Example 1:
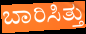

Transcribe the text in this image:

ಬಾರಿಸಿತ್ತು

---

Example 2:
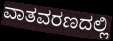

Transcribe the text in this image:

ವಾತವರಣದಲ್ಲಿ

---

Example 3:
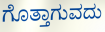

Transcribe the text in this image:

ಗೊತ್ತಾಗುವದು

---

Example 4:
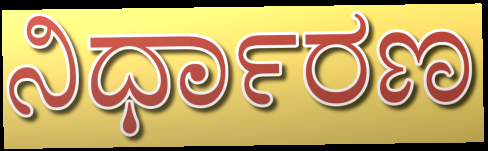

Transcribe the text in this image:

ನಿರ್ಧಾರಣ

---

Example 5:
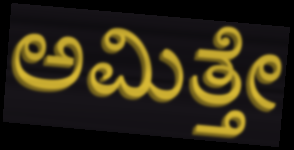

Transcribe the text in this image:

ಅಮಿತ್ತೇ